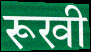
रूखी